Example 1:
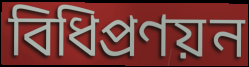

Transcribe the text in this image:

বিধিপ্রণয়ন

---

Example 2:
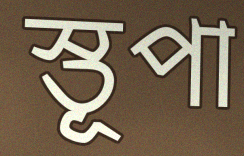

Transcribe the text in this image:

স্তূপা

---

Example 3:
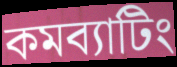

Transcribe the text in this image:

কমব্যাটিং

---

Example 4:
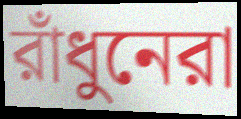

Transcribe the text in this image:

রাঁধুনেরা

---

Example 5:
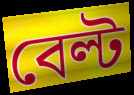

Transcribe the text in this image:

বেল্ট